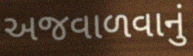
અજવાળવાનું